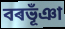
বৰভূঁঞা